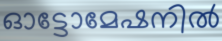
ഓട്ടോമേഷനിൽ